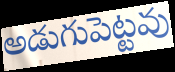
అడుగుపెట్టవు